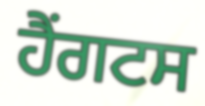
ਹੈਂਗਟਸ